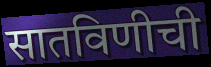
सातविणीची